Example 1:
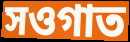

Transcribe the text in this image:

সওগাত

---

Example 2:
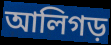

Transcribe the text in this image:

আলিগড়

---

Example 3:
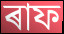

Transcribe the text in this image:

ৰাফ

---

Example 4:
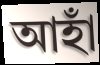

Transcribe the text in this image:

আহাঁ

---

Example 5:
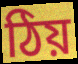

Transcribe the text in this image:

ঠিয়